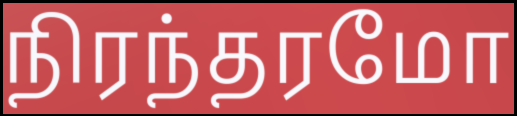
நிரந்தரமோ